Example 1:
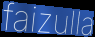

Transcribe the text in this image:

faizulla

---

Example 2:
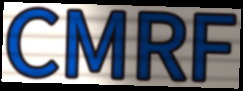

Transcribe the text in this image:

CMRF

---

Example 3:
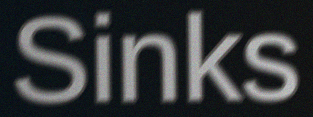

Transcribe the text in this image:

Sinks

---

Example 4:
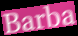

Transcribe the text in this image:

Barba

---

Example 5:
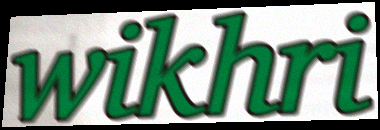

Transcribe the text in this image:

wikhri